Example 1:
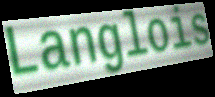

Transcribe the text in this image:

Langlois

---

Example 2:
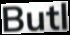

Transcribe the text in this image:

Butl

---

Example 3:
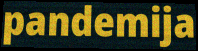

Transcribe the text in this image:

pandemija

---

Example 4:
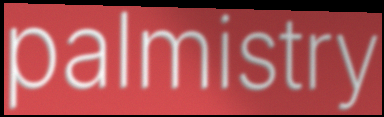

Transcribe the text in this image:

palmistry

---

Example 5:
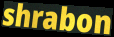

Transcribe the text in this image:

shrabon